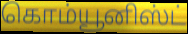
கொம்யூனிஸ்ட்